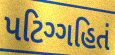
પટિગ્ગહિતં